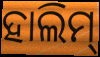
ହାଲିମ୍